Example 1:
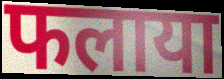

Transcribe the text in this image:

फलाया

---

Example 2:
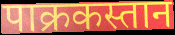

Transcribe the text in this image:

पाक्रकस्तान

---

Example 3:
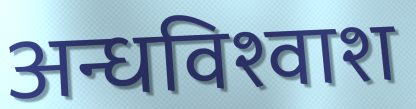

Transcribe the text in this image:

अन्धविश्वाश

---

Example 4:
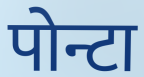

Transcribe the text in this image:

पोन्टा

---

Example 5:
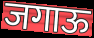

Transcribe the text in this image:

जगाऊ